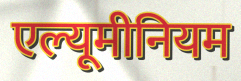
एल्यूमीनियम